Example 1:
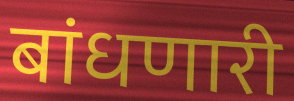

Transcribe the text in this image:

बांधणारी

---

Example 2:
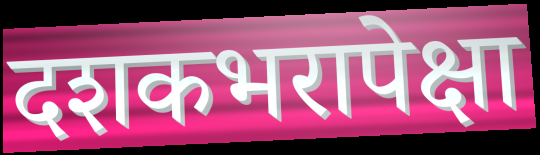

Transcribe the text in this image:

दशकभरापेक्षा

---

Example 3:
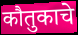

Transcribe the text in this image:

कौतुकाचे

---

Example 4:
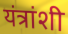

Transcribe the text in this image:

यंत्रांशी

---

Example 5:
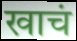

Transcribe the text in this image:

खाचं